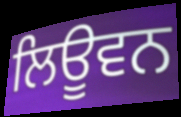
ਲਿਊਵਨ